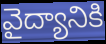
వైద్యానికి